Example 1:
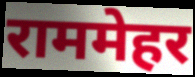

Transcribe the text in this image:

राममेहर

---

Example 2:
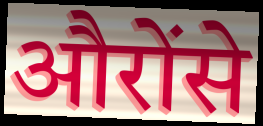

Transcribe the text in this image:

औरोंसे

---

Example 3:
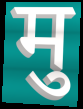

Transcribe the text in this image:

मु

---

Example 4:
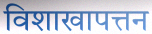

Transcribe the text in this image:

विशाखापत्तन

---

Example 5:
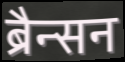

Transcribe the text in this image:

ब्रैन्सन